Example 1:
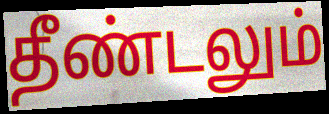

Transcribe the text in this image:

தீண்டலும்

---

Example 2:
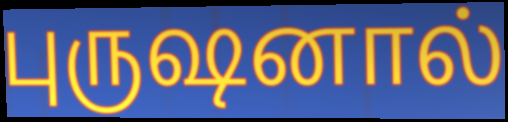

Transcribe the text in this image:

புருஷனால்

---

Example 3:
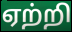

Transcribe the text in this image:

ஏற்றி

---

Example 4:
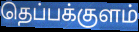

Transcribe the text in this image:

தெப்பக்குளம்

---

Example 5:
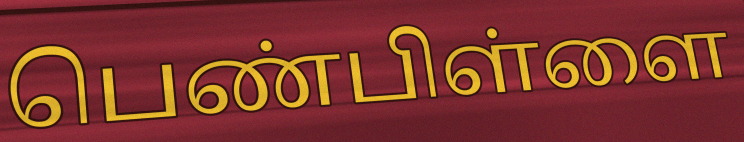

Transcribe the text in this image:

பெண்பிள்ளை